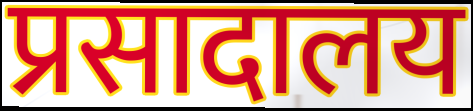
प्रसादालय